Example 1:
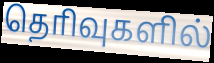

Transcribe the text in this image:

தெரிவுகளில்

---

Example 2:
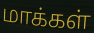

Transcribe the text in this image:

மாக்கள்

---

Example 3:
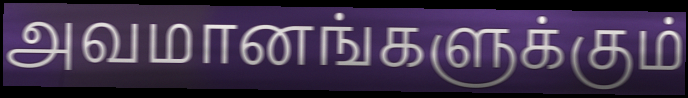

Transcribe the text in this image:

அவமானங்களுக்கும்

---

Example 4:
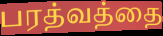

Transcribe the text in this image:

பரத்வத்தை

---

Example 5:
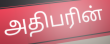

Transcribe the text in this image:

அதிபரின்